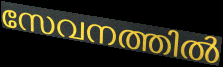
സേവനത്തിൽ